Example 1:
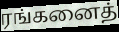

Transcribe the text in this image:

ரங்கனைத்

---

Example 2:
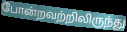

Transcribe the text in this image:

போன்றவற்றிலிருந்து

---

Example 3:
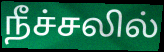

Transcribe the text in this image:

நீச்சலில்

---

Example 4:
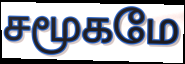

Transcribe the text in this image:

சமூகமே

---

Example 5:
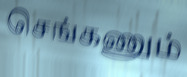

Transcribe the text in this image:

செங்கணும்